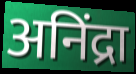
अनिंद्रा